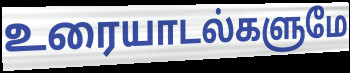
உரையாடல்களுமே